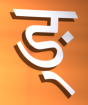
ङ्